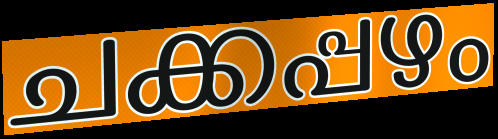
ചക്കപ്പഴം